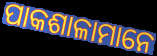
ପାକଶାଳାମାନେ